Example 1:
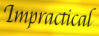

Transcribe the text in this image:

Impractical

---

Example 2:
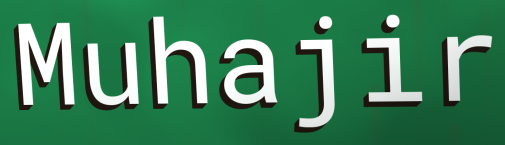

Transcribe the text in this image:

Muhajir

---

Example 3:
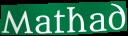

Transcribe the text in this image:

Mathad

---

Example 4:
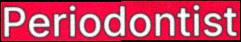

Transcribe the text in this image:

Periodontist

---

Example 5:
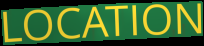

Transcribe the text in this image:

LOCATION